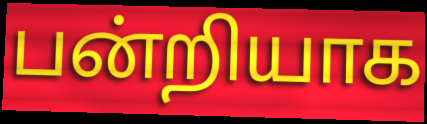
பன்றியாக